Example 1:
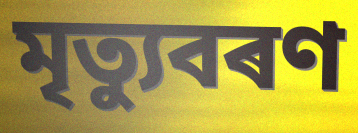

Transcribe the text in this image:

মৃত্যুবৰণ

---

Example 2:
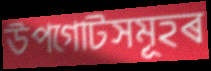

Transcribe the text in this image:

উপগোটসমূহৰ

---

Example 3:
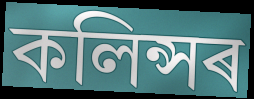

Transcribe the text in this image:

কলিন্সৰ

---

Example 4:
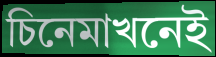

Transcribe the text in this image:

চিনেমাখনেই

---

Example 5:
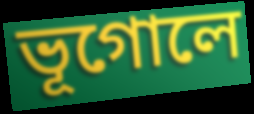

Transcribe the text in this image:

ভূগোলে